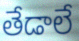
తేడాలే